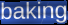
baking